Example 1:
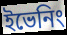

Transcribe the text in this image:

ইভেনিং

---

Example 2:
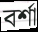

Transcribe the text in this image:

বর্শা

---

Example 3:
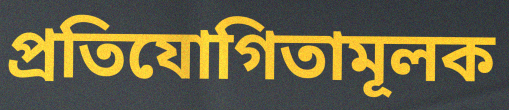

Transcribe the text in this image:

প্রতিযোগিতামূলক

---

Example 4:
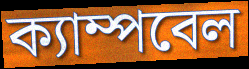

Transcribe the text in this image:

ক্যাম্পবেল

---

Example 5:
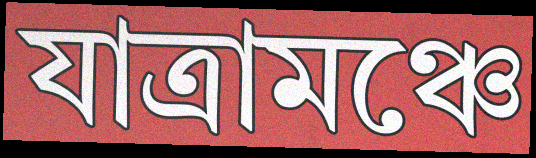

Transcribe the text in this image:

যাত্রামঞ্চে